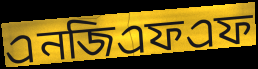
এনজিএফএফ